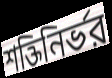
শক্তিনির্ভর